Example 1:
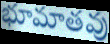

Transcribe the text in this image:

భూమాతవు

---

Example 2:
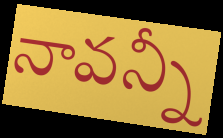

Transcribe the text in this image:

నావన్నీ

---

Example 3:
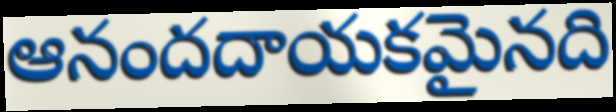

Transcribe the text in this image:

ఆనందదాయకమైనది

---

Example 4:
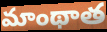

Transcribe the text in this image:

మాంథాత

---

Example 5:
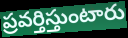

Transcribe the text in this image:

ప్రవర్తిస్తుంటారు